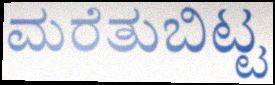
ಮರೆತುಬಿಟ್ಟ